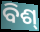
ବିଶ୍